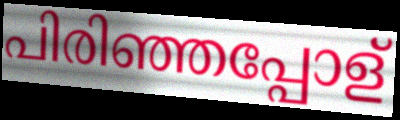
പിരിഞ്ഞപ്പോള്